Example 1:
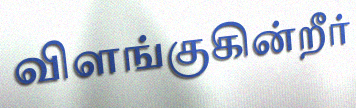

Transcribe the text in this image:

விளங்குகின்றீர்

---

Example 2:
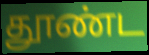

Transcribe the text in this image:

தூண்ட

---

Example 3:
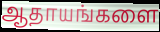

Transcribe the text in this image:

ஆதாயங்களை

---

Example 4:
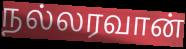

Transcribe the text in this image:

நல்லரவான்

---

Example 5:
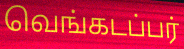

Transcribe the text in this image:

வெங்கடப்பர்